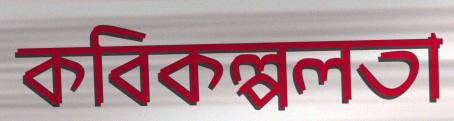
কবিকল্পলতা